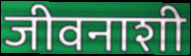
जीवनाशी